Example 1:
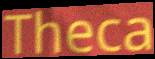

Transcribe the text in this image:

Theca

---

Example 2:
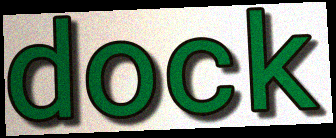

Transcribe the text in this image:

dock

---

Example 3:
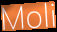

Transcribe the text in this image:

Moli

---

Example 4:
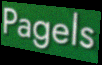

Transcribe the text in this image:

Pagels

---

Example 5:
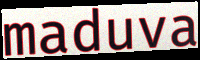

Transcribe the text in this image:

maduva